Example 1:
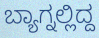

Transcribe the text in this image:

ಬ್ಯಾಗ್ನಲ್ಲಿದ್ದ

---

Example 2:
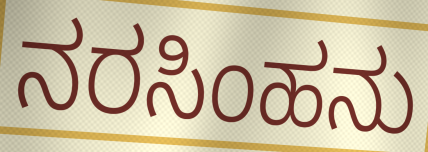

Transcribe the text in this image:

ನರಸಿಂಹನು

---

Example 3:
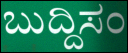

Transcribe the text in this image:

ಬುದ್ದಿಸಂ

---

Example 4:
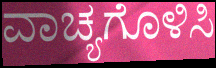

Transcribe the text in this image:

ವಾಚ್ಯಗೊಳಿಸಿ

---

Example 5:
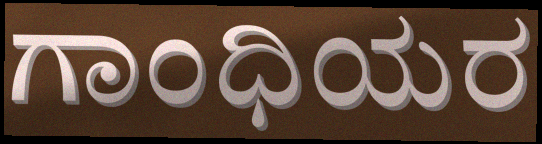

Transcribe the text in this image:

ಗಾಂಧಿಯರ